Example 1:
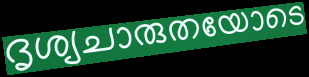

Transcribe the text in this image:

ദൃശ്യചാരുതയോടെ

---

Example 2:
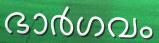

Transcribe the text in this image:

ഭാർഗവം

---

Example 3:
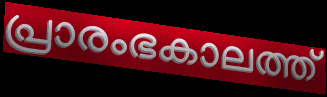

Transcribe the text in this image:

പ്രാരംഭകാലത്ത്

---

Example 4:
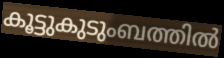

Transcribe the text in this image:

കൂട്ടുകുടുംബത്തിൽ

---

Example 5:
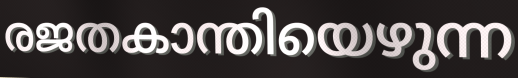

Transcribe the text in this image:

രജതകാന്തിയെഴുന്ന